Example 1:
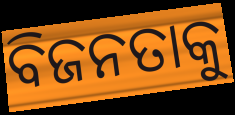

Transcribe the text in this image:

ବିଜନତାକୁ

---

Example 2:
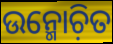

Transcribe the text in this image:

ଉନ୍ମୋଚ଼ିତ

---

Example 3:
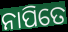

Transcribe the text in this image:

ନାପିତେ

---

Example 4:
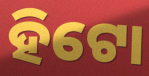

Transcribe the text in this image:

ହିଟୋ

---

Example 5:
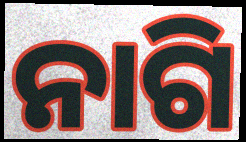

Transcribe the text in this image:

ନାଗି